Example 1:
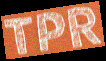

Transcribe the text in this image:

TPR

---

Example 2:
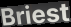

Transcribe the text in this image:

Briest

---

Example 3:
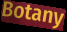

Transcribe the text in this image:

Botany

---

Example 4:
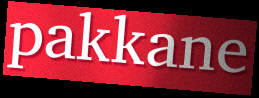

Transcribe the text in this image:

pakkane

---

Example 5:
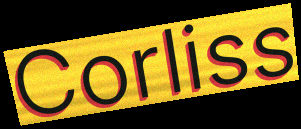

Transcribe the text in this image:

Corliss